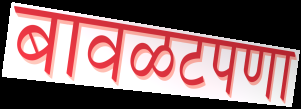
बावळटपणा